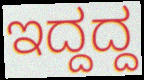
ಇದ್ದದ್ದ